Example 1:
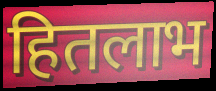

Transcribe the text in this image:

हितलाभ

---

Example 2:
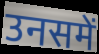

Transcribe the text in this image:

उनसमें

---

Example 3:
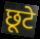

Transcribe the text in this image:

छूटे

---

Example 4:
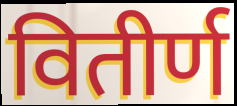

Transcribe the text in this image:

वितीर्ण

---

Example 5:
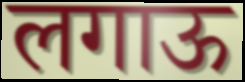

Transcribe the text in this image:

लगाऊ